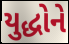
યુદ્ધોને